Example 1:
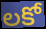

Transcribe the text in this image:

లకో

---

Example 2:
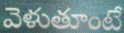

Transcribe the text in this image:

వెళుతూంటే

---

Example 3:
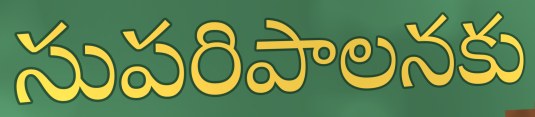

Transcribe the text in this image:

సుపరిపాలనకు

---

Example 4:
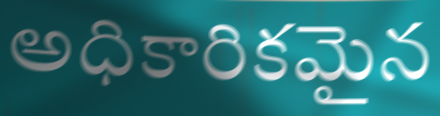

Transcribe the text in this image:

అధికారికమైన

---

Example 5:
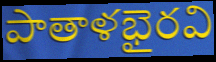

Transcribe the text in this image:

పాతాళభైరవి